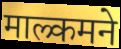
माल्कमने